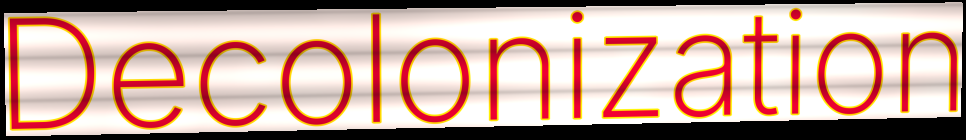
Decolonization